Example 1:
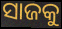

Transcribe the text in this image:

ସାଜକୁ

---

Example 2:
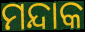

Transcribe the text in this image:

ମନ୍ଦାକ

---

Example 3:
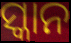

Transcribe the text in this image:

ସ୍କାନ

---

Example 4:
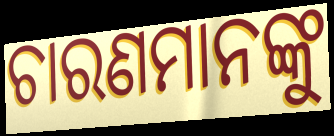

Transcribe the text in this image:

ଚାରଣମାନଙ୍କୁ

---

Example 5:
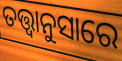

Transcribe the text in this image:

ତତ୍ତ୍ୱାନୁସାରେ